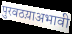
पुरवठय़ाअभावी